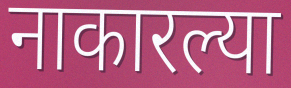
नाकारल्या